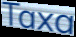
Taxa